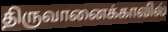
திருவானைக்காவில்